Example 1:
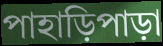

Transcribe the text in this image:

পাহাড়িপাড়া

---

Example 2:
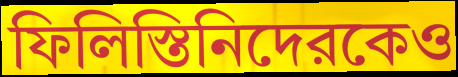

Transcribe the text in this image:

ফিলিস্তিনিদেরকেও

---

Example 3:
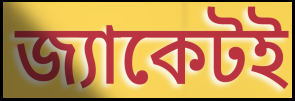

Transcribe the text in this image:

জ্যাকেটই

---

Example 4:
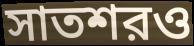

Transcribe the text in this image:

সাতশরও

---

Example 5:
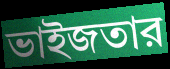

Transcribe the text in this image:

ভাইজতার